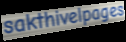
sakthivelpages